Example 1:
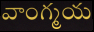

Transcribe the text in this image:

వాంగ్మయ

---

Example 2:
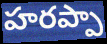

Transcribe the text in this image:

హరప్పా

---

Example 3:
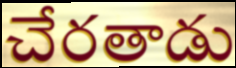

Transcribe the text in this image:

చేరతాడు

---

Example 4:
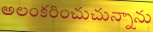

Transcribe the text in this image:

అలంకరించుచున్నాను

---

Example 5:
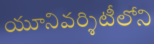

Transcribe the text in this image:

యూనివర్శిటీలోని